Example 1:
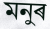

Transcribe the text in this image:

মনুৰ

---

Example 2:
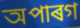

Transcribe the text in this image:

অপাৰগ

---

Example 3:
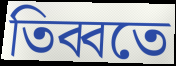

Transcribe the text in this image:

তিব্বতে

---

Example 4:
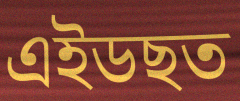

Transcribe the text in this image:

এইডছত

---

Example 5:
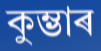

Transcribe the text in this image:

কুম্ভাৰ